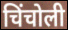
चिंचोली